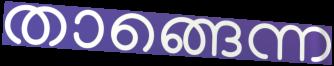
താങ്ങെന്ന